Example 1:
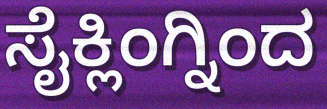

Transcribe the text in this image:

ಸೈಕ್ಲಿಂಗ್ನಿಂದ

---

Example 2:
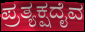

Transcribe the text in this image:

ಪ್ರತ್ಯಕ್ಷದೈವ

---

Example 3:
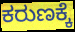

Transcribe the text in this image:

ಕರುಣಕ್ಕೆ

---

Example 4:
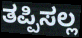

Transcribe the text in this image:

ತಪ್ಪಿಸಲ್ಲ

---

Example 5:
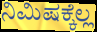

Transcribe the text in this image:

ನಿಮಿಷಕ್ಕೆಲ್ಲ